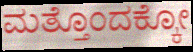
ಮತ್ತೊಂದಕ್ಕೋ